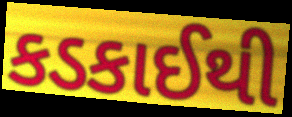
કડકાઈથી